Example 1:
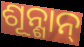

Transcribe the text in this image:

ଶୂନ୍ଶାନ୍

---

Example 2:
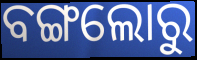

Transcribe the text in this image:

ବଙ୍ଗଲୋରୁ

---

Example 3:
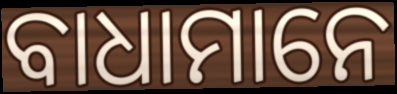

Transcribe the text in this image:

ବାଧାମାନେ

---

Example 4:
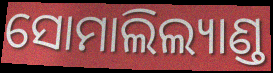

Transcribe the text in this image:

ସୋମାଲିଲ୍ୟାଣ୍ଡ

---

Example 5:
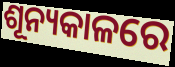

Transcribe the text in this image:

ଶୂନ୍ୟକାଳରେ